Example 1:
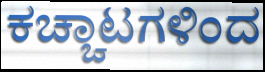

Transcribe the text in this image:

ಕಚ್ಚಾಟಗಳಿಂದ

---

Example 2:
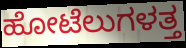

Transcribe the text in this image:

ಹೋಟೆಲುಗಳತ್ತ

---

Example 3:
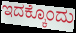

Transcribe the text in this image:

ಇದಕ್ಕೊಂದು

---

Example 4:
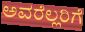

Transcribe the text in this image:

ಅವರೆಲ್ಲರಿಗೆ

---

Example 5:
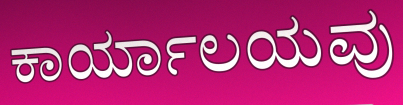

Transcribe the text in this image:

ಕಾರ್ಯಾಲಯವು